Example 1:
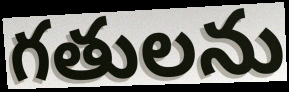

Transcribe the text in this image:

గతులను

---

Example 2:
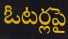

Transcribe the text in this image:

ఓటర్లపై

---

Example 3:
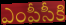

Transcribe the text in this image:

ఎంపీసీకి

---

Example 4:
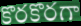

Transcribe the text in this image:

కొరకొరగా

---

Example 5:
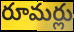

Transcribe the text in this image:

రూమర్లు